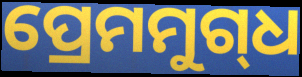
ପ୍ରେମମୁଗ୍‌ଧ